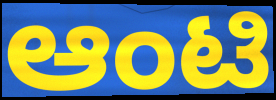
ಆಂಟಿ